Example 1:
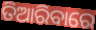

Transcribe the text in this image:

ତିଆରିବାରେ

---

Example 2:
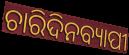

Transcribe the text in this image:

ଚାରିଦିନବ୍ୟାପୀ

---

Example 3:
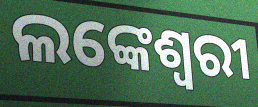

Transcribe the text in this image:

ଲଙ୍କେଶ୍ଵରୀ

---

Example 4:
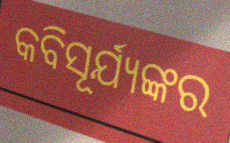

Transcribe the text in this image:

କବିସୂର୍ଯ୍ୟଙ୍କର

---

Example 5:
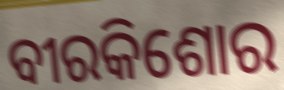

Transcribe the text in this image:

ବୀରକିଶୋର